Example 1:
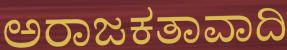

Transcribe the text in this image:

ಅರಾಜಕತಾವಾದಿ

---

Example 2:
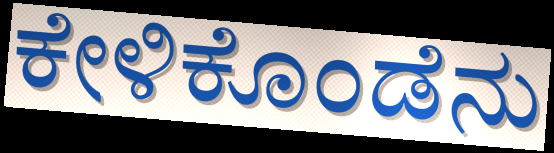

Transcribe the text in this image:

ಕೇಳಿಕೊಂಡೆನು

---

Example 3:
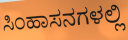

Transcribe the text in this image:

ಸಿಂಹಾಸನಗಳಲ್ಲಿ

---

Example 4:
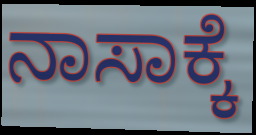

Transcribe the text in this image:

ನಾಸಾಕ್ಕೆ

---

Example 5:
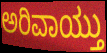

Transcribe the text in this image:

ಅರಿವಾಯ್ತು